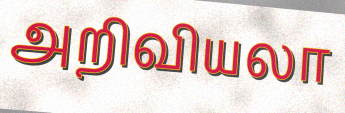
அறிவியலா